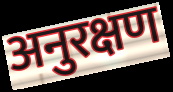
अनुरक्षण